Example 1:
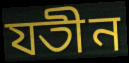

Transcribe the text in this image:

যতীন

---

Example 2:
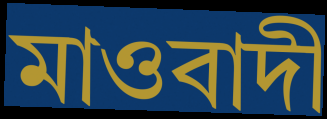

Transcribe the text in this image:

মাওবাদী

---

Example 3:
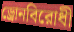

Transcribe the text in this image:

ড্রোনবিরোধী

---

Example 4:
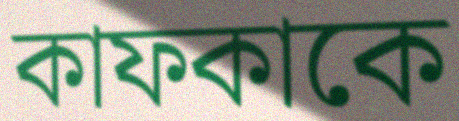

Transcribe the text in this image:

কাফকাকে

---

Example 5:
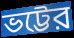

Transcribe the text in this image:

ভট্টের